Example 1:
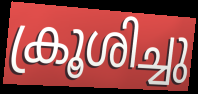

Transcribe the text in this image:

ക്രൂശിച്ചു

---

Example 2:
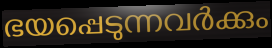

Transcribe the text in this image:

ഭയപ്പെടുന്നവർക്കും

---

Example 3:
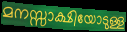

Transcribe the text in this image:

മനസ്സാക്ഷിയോടുള്ള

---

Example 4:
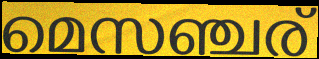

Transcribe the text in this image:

മെസഞ്ചര്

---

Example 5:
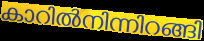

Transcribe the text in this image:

കാറിൽനിന്നിറങ്ങി